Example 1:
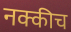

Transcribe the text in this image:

नक्कीच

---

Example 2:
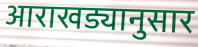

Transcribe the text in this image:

आराखड्यानुसार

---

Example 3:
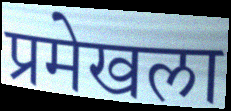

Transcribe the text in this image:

प्रमेखला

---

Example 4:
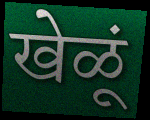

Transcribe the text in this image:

खेळूं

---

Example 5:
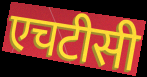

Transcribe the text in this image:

एचटीसी